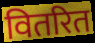
वितरित